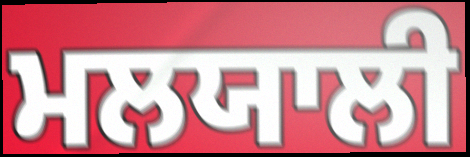
ਮਲਯਾਲੀ